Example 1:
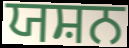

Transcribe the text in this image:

ਯਸ਼ਨ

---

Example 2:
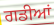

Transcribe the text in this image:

ਗਡੀਆਂ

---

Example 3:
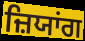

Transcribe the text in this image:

ਜ਼ਿਯਾਂਗ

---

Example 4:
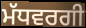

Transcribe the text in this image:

ਮੱਧਵਰਗੀ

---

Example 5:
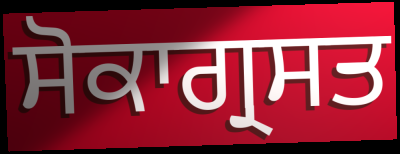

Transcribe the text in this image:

ਸੋਕਾਗ੍ਰਸਤ